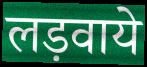
लड़वाये